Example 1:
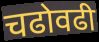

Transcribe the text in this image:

चढोवढी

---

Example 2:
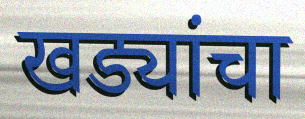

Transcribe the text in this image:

खड्यांचा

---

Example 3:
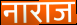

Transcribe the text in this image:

नाराज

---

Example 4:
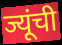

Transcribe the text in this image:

ज्यूंची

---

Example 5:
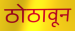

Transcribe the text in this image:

ठोठावून